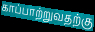
காப்பாற்றுவதற்கு